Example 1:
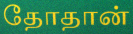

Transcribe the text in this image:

தோதான்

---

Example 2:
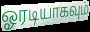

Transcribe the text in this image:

ஓரடியாகவும்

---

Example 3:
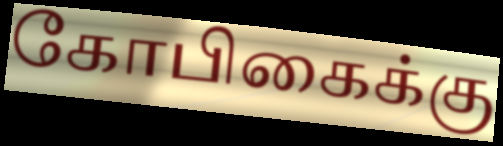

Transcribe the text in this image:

கோபிகைக்கு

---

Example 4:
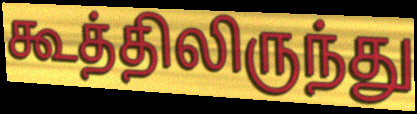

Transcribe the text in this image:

கூத்திலிருந்து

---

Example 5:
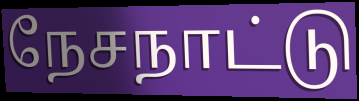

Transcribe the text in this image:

நேசநாட்டு